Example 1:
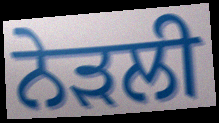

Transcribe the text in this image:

ਨੇੜਲੀ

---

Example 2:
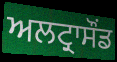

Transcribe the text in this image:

ਅਲਟ੍ਰਾਸੌਂਡ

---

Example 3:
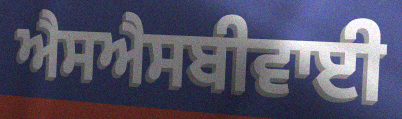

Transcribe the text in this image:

ਐਸਐਸਬੀਵਾਈ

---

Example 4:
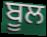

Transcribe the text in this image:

ਬੂਲ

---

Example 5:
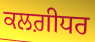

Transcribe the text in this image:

ਕਲਗ਼ੀਧਰ